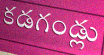
కడగండ్లు